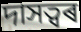
দাসত্বৰ